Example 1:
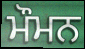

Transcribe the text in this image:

ਮੌਮਨ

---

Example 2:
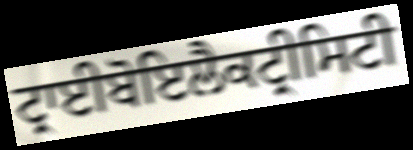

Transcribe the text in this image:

ਟ੍ਰਾਈਬੋਇਲੈਕਟ੍ਰੀਸਿਟੀ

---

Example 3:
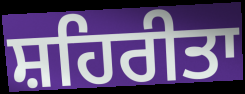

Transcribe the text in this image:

ਸ਼ਹਿਰੀਤਾ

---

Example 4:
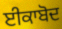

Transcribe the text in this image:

ਈਕਾਬੋਦ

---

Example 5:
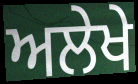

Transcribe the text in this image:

ਅਲੇਖੇ